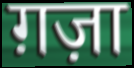
ग़ज़ा